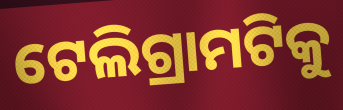
ଟେଲିଗ୍ରାମଟିକୁ